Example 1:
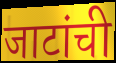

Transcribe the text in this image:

जाटांची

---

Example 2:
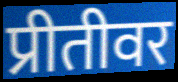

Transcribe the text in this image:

प्रीतीवर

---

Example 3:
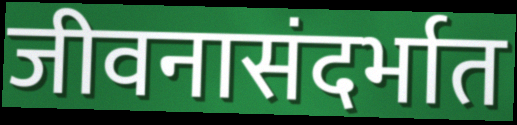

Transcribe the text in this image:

जीवनासंदर्भात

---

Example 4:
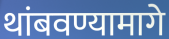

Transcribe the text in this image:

थांबवण्यामागे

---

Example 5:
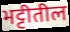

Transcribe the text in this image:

भट्टीतील